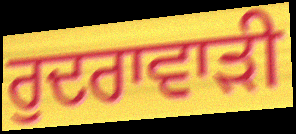
ਰੁਦਰਾਵਾੜੀ